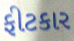
ફીટકાર